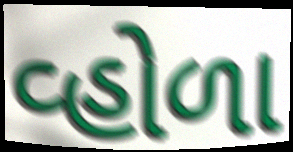
વ્હોળા